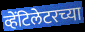
व्हेंटिलेटरच्या